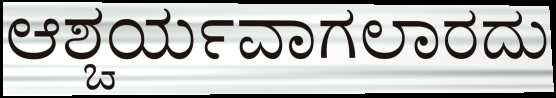
ಆಶ್ಚರ್ಯವಾಗಲಾರದು